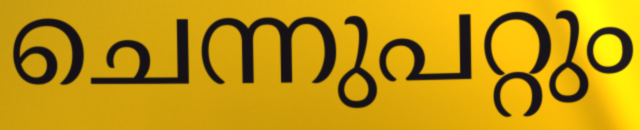
ചെന്നുപറ്റും